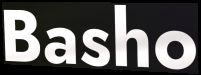
Basho